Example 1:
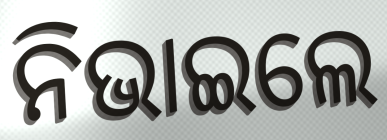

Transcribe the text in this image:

ନିଭାଇଲେ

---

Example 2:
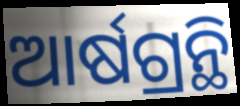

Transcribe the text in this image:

ଆର୍ଷଗ୍ରନ୍ଥି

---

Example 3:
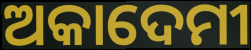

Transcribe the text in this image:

ଅକାଦେମୀ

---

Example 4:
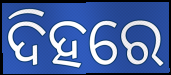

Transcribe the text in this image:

ଦିହରେ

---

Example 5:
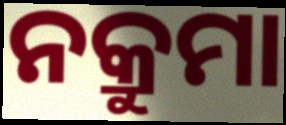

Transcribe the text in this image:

ନକ୍ରୁମା